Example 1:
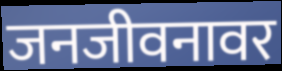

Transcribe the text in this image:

जनजीवनावर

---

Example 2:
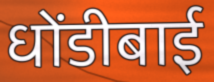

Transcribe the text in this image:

धोंडीबाई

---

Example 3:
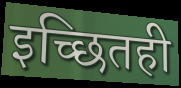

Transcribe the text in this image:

इच्छितही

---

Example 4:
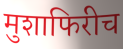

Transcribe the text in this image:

मुशाफिरीच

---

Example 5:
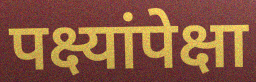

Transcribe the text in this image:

पक्ष्यांपेक्षा